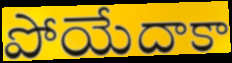
పోయేదాకా